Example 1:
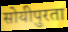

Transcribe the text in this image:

सोयीपुरता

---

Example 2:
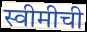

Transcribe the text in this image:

स्वीमीची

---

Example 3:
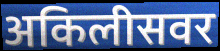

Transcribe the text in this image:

अकिलीसवर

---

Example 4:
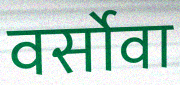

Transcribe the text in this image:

वर्सोवा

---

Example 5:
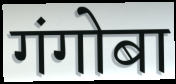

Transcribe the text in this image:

गंगोबा